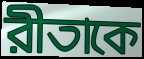
রীতাকে